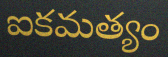
ఐకమత్యం